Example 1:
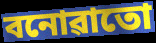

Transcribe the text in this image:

বনোৱাতো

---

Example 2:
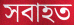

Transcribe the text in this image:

সবাহত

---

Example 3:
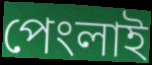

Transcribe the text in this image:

পেংলাই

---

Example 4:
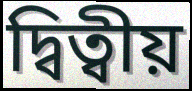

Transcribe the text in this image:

দ্বিত্বীয়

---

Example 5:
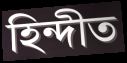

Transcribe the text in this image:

হিন্দীত